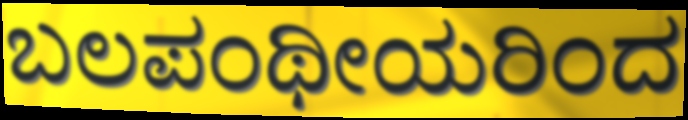
ಬಲಪಂಥೀಯರಿಂದ